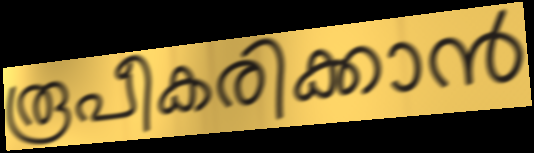
രൂപീകരിക്കാൻ